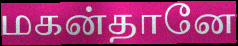
மகன்தானே